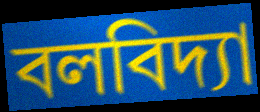
বলবিদ্যা